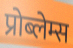
प्रोब्लेम्स